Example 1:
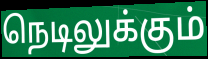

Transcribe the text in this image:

நெடிலுக்கும்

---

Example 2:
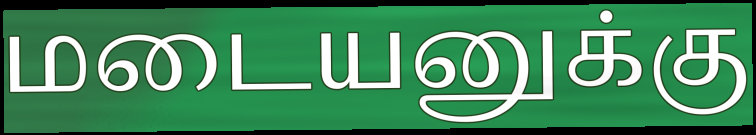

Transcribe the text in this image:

மடையனுக்கு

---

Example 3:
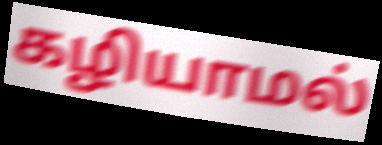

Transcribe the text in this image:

கழியாமல்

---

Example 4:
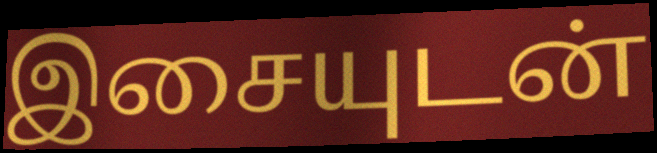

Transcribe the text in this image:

இசையுடன்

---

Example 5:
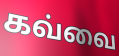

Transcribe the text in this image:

கவ்வை